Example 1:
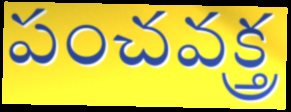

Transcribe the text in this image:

పంచవక్త్ర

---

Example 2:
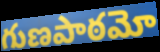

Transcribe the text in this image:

గుణపాఠమో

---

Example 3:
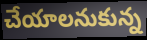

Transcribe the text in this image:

చేయాలనుకున్న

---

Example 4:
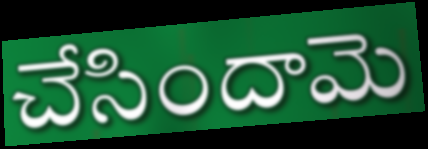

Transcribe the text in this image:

చేసిందామె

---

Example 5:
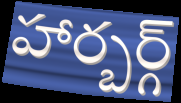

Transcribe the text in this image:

హార్బర్గ్